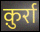
क़ुर्रा